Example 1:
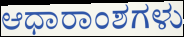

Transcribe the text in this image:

ಆಧಾರಾಂಶಗಳು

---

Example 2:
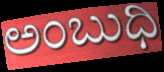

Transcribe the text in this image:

ಅಂಬುಧಿ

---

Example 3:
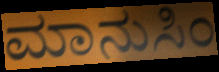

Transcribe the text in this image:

ಮಾನುಸಿಂ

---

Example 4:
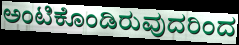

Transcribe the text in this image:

ಅಂಟಿಕೊಂಡಿರುವುದರಿಂದ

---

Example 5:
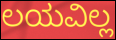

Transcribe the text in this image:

ಲಯವಿಲ್ಲ